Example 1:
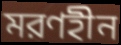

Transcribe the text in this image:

মরণহীন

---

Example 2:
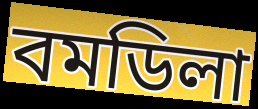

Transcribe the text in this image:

বমডিলা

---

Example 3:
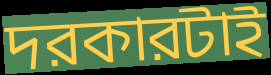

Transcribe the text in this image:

দরকারটাই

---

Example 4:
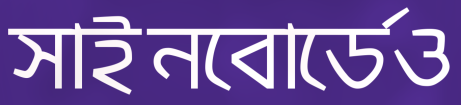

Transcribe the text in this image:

সাইনবোর্ডেও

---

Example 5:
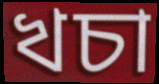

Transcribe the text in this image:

খচা